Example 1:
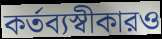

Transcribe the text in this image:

কর্তব্যস্বীকারও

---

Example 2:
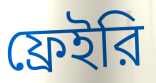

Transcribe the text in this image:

ফ্রেইরি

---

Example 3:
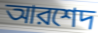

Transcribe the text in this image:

আরশেদ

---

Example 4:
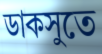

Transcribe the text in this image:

ডাকসুতে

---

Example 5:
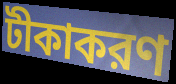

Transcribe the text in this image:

টীকাকরণ